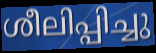
ശീലിപ്പിച്ചു